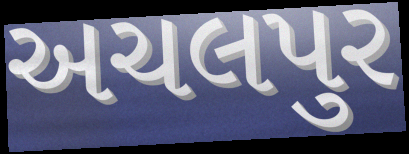
અચલપુર